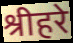
श्रीहरे